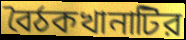
বৈঠকখানাটির